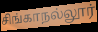
சிங்காநல்லூர்